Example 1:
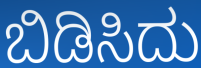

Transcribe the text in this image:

ಬಿಡಿಸಿದು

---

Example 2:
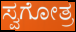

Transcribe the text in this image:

ಸ್ವಗೋತ್ರ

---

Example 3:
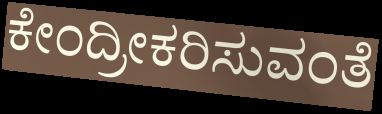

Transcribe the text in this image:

ಕೇಂದ್ರೀಕರಿಸುವಂತೆ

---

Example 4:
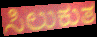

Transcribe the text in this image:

ಸಿಲುಕುತ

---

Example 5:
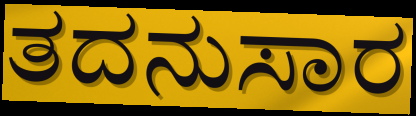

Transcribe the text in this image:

ತದನುಸಾರ